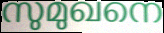
സുമുഖനെ